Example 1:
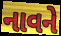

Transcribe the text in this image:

નાવને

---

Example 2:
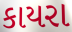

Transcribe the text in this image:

કાયરા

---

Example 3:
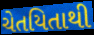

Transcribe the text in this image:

ચેતયિતાથી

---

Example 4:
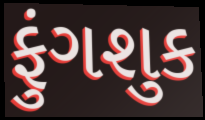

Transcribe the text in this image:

ફુંગશુક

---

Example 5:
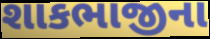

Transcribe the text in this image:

શાકભાજીના